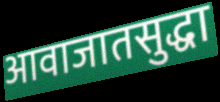
आवाजातसुद्धा